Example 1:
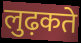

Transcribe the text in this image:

लुढ़कते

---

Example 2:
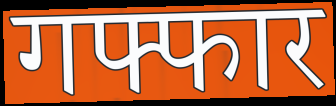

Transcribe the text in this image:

गफ्फार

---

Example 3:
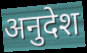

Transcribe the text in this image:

अनुदेश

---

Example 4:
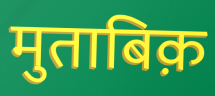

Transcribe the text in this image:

मुताबिक़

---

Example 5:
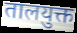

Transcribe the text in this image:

तालयुक्त